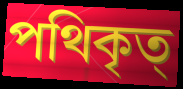
পথিকৃত্